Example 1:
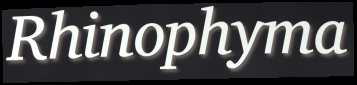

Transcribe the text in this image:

Rhinophyma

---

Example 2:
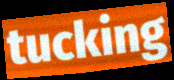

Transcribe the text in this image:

tucking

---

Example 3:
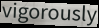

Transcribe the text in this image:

vigorously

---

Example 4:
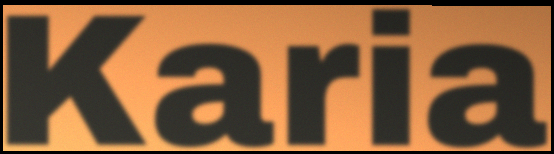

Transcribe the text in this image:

Karia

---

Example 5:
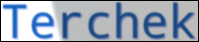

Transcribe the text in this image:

Terchek